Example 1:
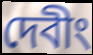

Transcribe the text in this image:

দেবীং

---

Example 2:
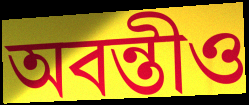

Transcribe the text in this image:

অবন্তীও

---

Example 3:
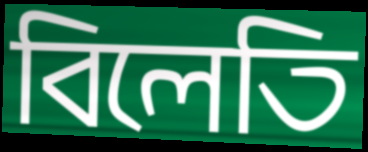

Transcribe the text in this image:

বিলেতি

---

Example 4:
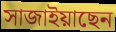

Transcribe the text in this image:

সাজাইয়াছেন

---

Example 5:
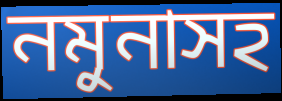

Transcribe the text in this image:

নমুনাসহ